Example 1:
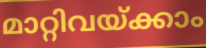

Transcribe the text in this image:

മാറ്റിവയ്ക്കാം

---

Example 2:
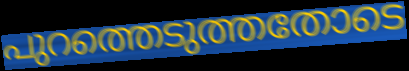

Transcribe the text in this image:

പുറത്തെടുത്തതോടെ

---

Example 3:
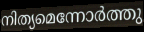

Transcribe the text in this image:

നിത്യമെന്നോർത്തു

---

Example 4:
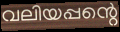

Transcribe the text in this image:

വലിയപ്പന്റെ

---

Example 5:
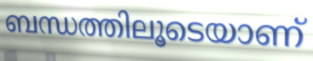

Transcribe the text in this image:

ബന്ധത്തിലൂടെയാണ്